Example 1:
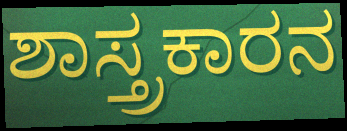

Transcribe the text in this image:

ಶಾಸ್ತ್ರಕಾರನ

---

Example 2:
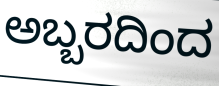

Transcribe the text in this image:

ಅಬ್ಬರದಿಂದ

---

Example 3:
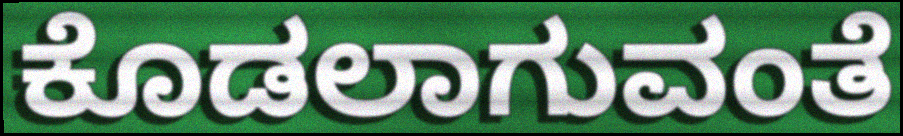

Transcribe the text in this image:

ಕೊಡಲಾಗುವಂತೆ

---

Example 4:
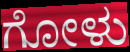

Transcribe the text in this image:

ಗೋಳು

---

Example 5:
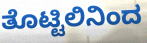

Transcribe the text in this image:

ತೊಟ್ಟಿಲಿನಿಂದ